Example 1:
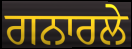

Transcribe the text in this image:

ਗਨਾਰਲੇ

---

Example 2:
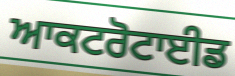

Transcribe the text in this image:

ਆਕਟਰੋਟਾਈਡ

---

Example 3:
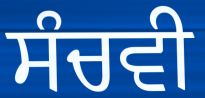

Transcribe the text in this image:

ਸੰਚਵੀ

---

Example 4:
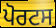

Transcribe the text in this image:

ਪੋਰਟਸ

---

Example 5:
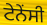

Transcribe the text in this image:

ਟੇਨੇਂਸੀ